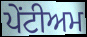
ਪੇਂਟੀਅਮ